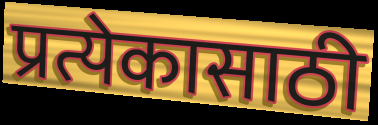
प्रत्येकासाठी